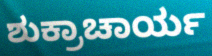
ಶುಕ್ರಾಚಾರ್ಯ